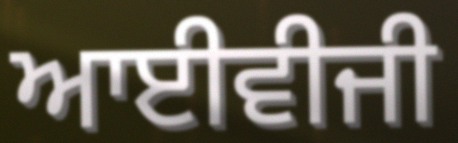
ਆਈਵੀਜੀ